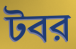
টবর